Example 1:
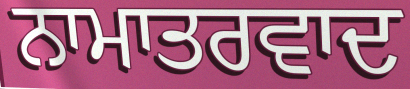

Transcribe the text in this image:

ਨਾਮਾਤਰਵਾਦ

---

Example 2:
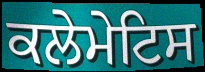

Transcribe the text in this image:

ਕਲੇਮੇਟਿਸ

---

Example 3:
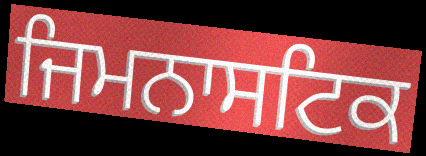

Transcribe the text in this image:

ਜਿਮਨਾਸਟਿਕ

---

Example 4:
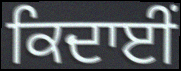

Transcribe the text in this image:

ਕਿਦਾਈਂ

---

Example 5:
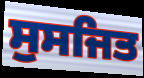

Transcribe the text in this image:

ਸੁਸਜਿਤ